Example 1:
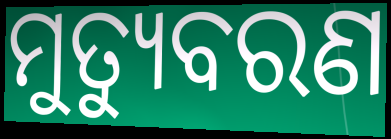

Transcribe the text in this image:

ମୁତ୍ୟୁବରଣ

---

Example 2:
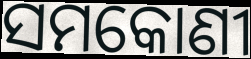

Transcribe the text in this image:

ସମକୋଣୀ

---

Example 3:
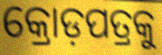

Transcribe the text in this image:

କ୍ରୋଡ଼ପତ୍ରକୁ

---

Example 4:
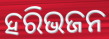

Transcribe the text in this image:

ହରିଭଜନ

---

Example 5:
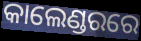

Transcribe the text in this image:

କାଲେଣ୍ଡରରେ